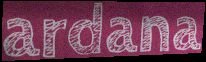
ardana